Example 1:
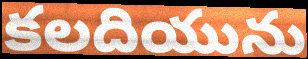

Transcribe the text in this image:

కలదియును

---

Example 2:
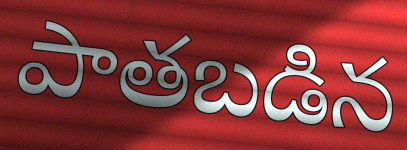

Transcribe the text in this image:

పాతబడిన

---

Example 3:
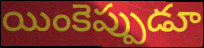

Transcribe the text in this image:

యింకెప్పుడూ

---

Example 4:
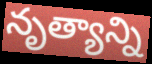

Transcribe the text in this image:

నృత్యాన్ని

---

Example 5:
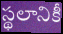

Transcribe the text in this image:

స్థలానికీ